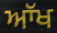
ਆੱਖ